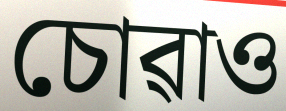
চোৱাও